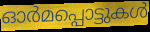
ഓർമപ്പൊട്ടുകൾ